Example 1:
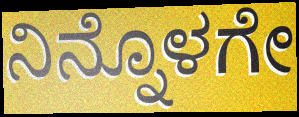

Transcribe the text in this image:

ನಿನ್ನೊಳಗೇ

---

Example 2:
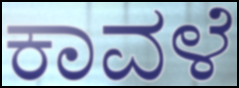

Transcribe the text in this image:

ಕಾವಳೆ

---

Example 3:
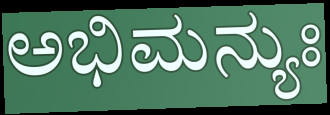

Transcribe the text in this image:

ಅಭಿಮನ್ಯುಃ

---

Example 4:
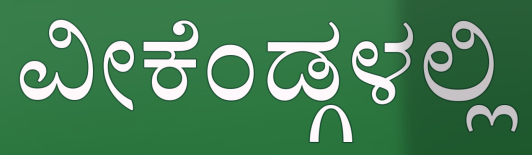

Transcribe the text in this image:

ವೀಕೆಂಡ್ಗಳಲ್ಲಿ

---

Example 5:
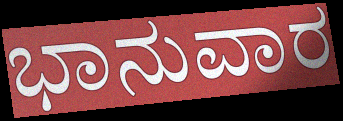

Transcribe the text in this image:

ಭಾನುವಾರ